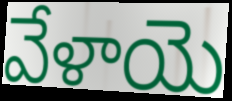
వేళాయె